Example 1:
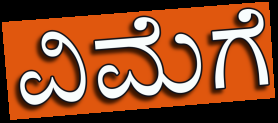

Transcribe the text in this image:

ವಿಮೆಗೆ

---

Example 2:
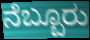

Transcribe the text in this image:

ನೆಬ್ಬೂರು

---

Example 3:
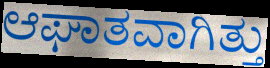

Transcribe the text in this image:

ಆಘಾತವಾಗಿತ್ತು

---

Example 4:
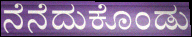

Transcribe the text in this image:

ನೆನೆದುಕೊಂಡು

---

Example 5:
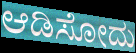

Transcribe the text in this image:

ಆಡಿಸೋದು